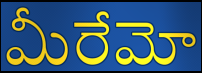
మీరేమో